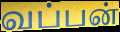
வப்பன்